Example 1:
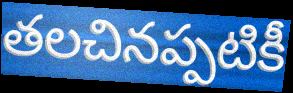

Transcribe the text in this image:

తలచినప్పటికీ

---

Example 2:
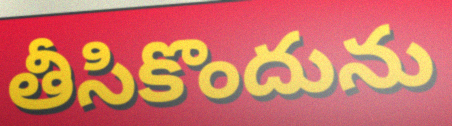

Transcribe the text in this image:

తీసికొందును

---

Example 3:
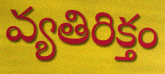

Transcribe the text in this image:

వ్యతిరిక్తం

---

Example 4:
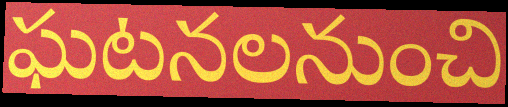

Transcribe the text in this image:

ఘటనలనుంచి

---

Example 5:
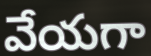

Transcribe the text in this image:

వేయగా